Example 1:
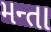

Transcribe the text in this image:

મન્તા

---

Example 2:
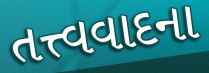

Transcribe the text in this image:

તત્ત્વવાદના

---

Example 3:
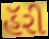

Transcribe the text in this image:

હૅરી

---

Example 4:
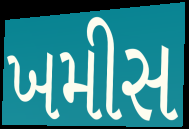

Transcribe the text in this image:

ખમીસ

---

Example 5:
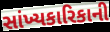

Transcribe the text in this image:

સાંખ્યકારિકાની